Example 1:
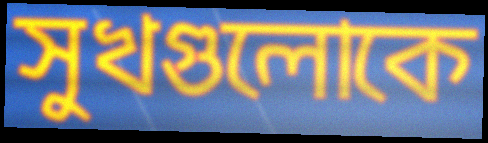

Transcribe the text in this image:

সুখগুলোকে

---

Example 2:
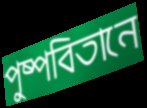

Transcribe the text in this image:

পুষ্পবিতানে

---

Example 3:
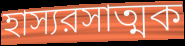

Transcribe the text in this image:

হাস্যরসাত্মক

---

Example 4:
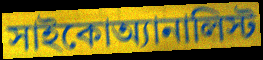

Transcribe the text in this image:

সাইকোঅ্যানালিস্ট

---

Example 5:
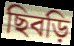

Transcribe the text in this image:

ছিবড়ি